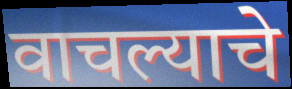
वाचल्याचे